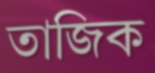
তাজিক